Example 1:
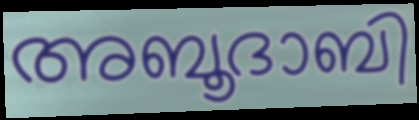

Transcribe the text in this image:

അബൂദാബി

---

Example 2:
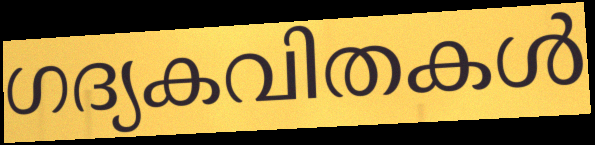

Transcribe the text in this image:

ഗദ്യകവിതകൾ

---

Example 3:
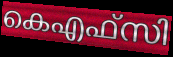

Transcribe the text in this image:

കെഎഫ്സി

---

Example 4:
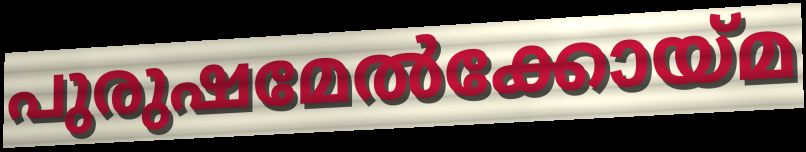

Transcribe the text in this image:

പുരുഷമേൽക്കോയ്മ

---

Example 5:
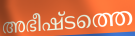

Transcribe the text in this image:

അഭീഷ്ടത്തെ